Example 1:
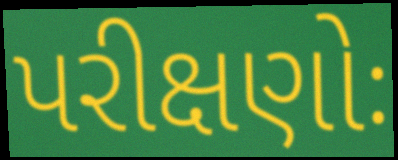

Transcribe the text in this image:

પરીક્ષણોઃ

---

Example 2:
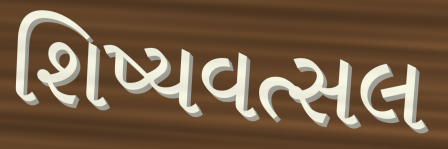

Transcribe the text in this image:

શિષ્યવત્સલ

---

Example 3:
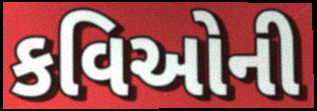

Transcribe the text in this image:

કવિઓની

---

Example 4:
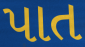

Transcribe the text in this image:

પાત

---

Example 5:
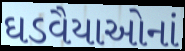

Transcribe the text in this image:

ઘડવૈયાઓનાં